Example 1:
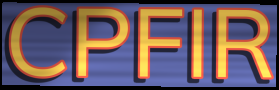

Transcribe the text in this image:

CPFIR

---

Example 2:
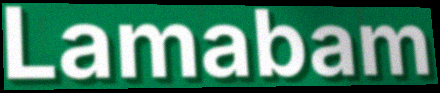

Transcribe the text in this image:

Lamabam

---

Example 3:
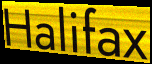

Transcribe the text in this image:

Halifax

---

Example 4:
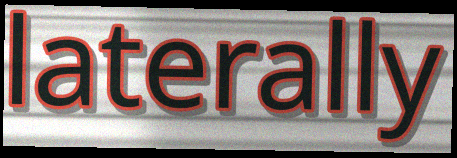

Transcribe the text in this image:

laterally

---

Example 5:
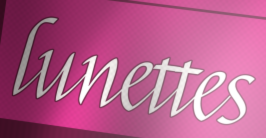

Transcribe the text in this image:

lunettes